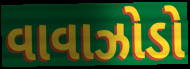
વાવાઝોડો